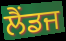
ਲੈਂਡਜ